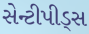
સેન્ટીપીડ્સ